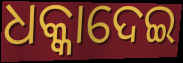
ଧକ୍କାଦେଇ